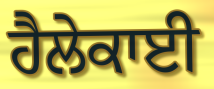
ਹੈਲੇਕਾਈ